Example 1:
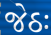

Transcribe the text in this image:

જેઠઃ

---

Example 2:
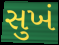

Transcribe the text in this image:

સુખં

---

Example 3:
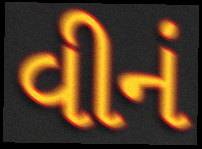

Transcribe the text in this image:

વીનં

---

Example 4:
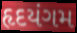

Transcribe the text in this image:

હૃદયંગમ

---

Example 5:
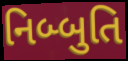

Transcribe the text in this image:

નિબ્બુતિ